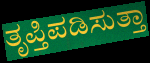
ತೃಪ್ತಿಪಡಿಸುತ್ತಾ